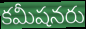
కమీషనరు